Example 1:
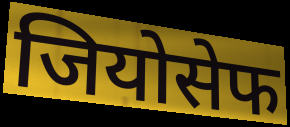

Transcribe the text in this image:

जियोसेफ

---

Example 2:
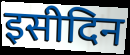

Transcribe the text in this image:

इसीदिन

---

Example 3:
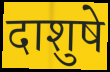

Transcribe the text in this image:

दाशुषे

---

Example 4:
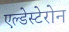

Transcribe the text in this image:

एल्डेस्टेरोन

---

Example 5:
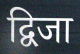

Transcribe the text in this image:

द्विजा